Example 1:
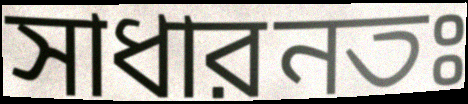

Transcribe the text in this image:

সাধারনতঃ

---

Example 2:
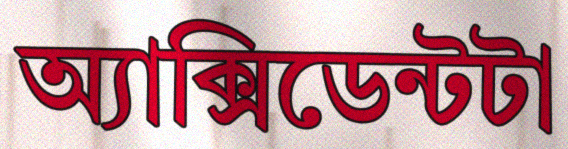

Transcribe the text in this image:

অ্যাক্সিডেন্টটা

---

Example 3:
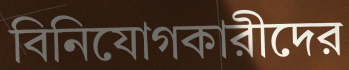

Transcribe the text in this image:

বিনিযোগকারীদের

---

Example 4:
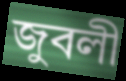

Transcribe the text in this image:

জুবলী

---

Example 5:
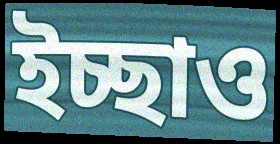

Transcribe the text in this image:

ইচ্ছাও